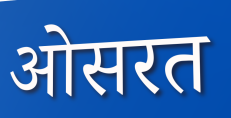
ओसरत